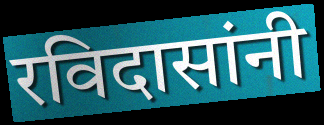
रविदासांनी